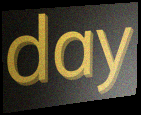
day